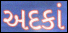
અદકાં